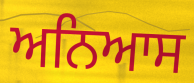
ਅਨਿਆਸ